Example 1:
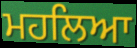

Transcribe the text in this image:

ਮਹਲਿਆ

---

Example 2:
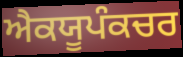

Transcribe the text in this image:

ਐਕਯੂਪੰਕਚਰ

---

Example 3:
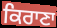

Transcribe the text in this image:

ਕਿਰਾਣਾ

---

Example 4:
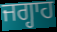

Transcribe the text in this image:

ਜਗ੍ਹਾਹ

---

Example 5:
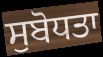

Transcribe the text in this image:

ਸੁਬੋਧਤਾ